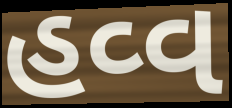
હવ્વ